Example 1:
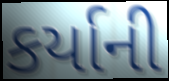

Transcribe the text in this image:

કર્યાની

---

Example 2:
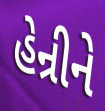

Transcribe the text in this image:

હેન્રીને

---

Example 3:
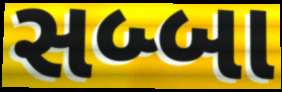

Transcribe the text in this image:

સબ્બા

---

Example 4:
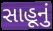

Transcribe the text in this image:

સાહૂનું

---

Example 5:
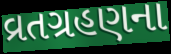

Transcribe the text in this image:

વ્રતગ્રહણના